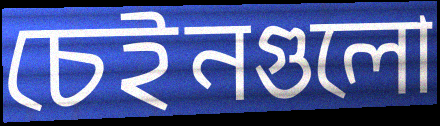
চেইনগুলো